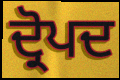
ਦ੍ਰੋਪਦ